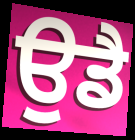
ਉਡੈ